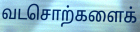
வடசொற்களைக்